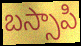
బస్సాపి